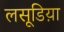
लसूडिय़ा